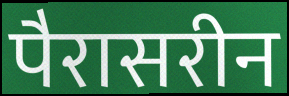
पैरासरीन